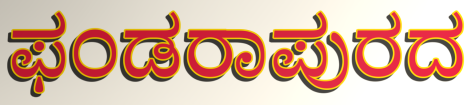
ಫಂಡರಾಪುರದ